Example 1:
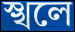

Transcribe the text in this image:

স্খলে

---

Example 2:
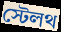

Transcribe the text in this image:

স্টেলথ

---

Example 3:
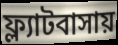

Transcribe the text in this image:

ফ্ল্যাটবাসায়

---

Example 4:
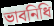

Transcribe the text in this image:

ভাবনিধি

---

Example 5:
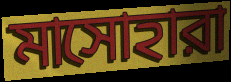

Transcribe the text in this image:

মাসোহারা